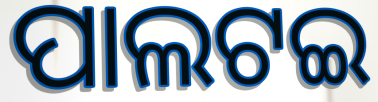
ପାଲଟଇ